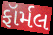
ફૉર્મલ